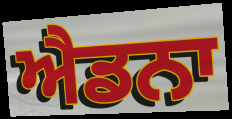
ਐਡਨਾ